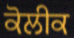
ਕੋਲੀਕ